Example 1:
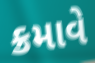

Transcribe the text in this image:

ક્રમાવે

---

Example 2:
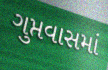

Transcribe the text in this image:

ગુપ્તવાસમાં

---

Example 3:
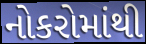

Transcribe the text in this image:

નોકરોમાંથી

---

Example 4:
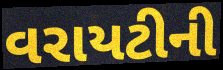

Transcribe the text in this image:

વરાયટીની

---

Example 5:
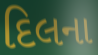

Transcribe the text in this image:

દિલના